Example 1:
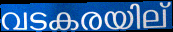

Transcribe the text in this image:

വടകരയില്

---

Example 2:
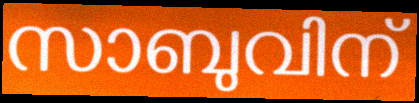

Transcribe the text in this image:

സാബുവിന്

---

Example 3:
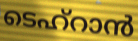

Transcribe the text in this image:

ടെഹ്റാൻ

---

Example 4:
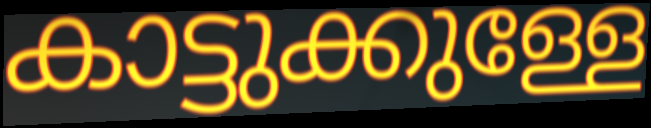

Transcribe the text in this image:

കാട്ടുക്കുള്ളേ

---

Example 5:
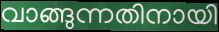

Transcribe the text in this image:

വാങ്ങുന്നതിനായി